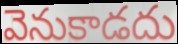
వెనుకాడదు